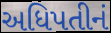
અધિપતીનં